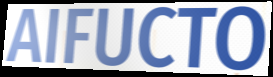
AIFUCTO